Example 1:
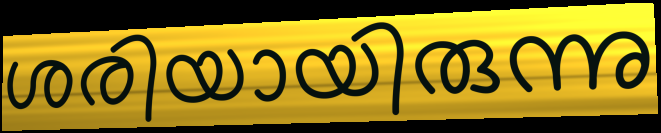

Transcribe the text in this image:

ശരിയായിരുന്നു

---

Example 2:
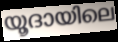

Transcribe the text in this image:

യൂദായിലെ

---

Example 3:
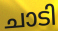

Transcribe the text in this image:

ചാടി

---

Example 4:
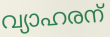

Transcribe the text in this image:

വ്യാഹരന്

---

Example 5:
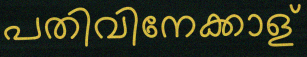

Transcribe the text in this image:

പതിവിനേക്കാള്